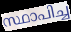
സ്ഥാപിച്ച